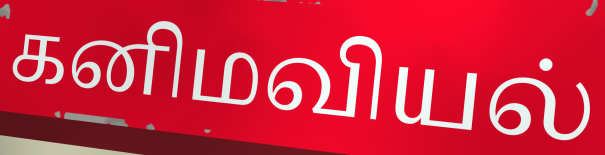
கனிமவியல்